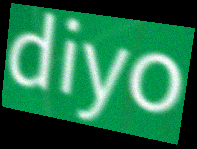
diyo